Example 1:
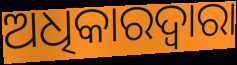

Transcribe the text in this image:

ଅଧିକାରଦ୍ୱାରା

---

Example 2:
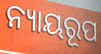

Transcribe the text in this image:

ନ୍ୟାୟରୂପ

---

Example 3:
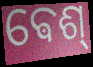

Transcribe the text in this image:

ଵେଶ୍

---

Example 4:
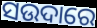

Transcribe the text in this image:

ସଉଦାରେ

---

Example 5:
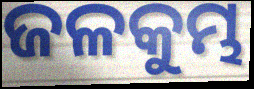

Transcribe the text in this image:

ଜଳକୁମ୍ଭ